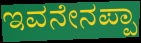
ಇವನೇನಪ್ಪಾ